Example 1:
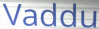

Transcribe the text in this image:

Vaddu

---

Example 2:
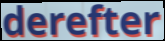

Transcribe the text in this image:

derefter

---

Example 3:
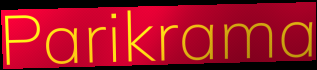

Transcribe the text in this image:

Parikrama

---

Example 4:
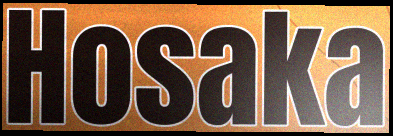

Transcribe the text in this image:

Hosaka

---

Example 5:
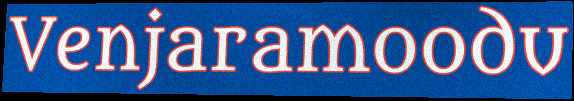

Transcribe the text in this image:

Venjaramoodu